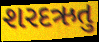
શરદઋતુ